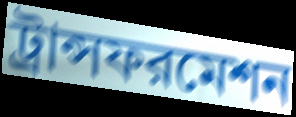
ট্রান্সফরমেশন